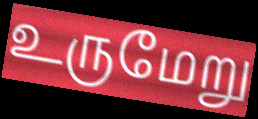
உருமேறு